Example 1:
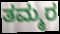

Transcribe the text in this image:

ತಮ್ಮರ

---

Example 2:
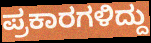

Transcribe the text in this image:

ಪ್ರಕಾರಗಳಿದ್ದು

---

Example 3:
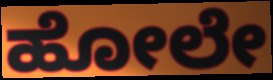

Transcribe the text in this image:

ಹೋಲೇ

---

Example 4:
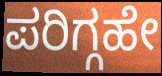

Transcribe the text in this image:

ಪರಿಗ್ಗಹೇ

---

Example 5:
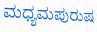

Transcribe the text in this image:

ಮಧ್ಯಮಪುರುಷ